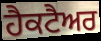
ਹੈਕਟੈਅਰ